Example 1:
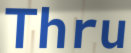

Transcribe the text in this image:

Thru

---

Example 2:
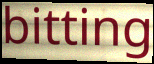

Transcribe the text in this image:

bitting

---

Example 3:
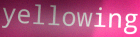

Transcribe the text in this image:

yellowing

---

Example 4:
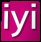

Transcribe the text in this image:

iyi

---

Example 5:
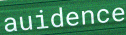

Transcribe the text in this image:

auidence